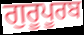
ਗੁਰੂਪੂਰਬ